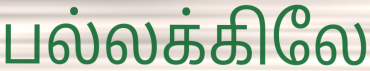
பல்லக்கிலே